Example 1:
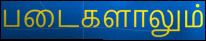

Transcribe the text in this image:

படைகளாலும்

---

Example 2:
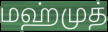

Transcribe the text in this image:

மஹ்முத்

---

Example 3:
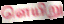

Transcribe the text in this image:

ளெயிறு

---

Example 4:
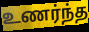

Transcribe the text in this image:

உணர்ந்த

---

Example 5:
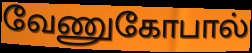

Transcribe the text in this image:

வேணுகோபால்